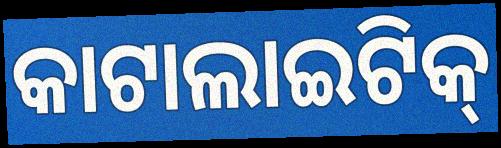
କାଟାଲାଇଟିକ୍